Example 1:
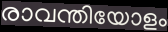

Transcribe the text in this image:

രാവന്തിയോളം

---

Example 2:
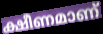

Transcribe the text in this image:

ക്ഷീണമാണ്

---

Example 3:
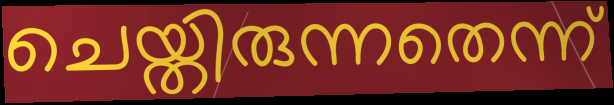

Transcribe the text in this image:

ചെയ്തിരുന്നതെന്ന്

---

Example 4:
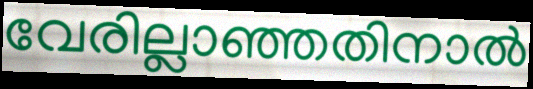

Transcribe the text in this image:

വേരില്ലാഞ്ഞതിനാൽ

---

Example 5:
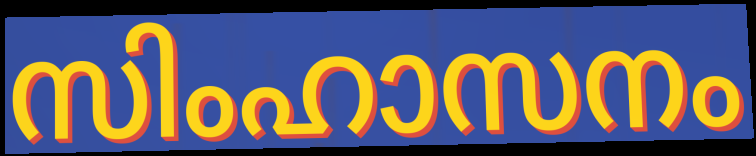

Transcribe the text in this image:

സിംഹാസനം